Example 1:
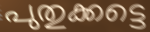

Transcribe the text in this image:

പുതുക്കട്ടെ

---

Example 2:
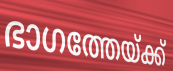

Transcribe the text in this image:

ഭാഗത്തേയ്ക്ക്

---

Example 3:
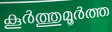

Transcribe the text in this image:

കൂർത്തുമൂർത്ത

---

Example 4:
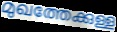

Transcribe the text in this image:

മുഖത്തേക്കുള്ള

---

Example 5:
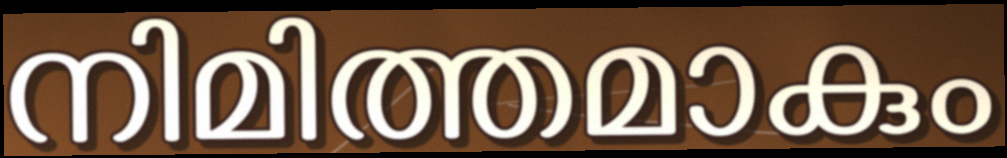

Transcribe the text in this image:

നിമിത്തമാകും